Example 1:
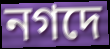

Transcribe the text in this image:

নগদে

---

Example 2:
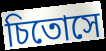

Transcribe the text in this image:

চিতোসে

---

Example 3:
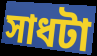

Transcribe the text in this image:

সাধটা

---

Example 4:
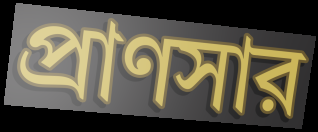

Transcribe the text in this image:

প্রাণসার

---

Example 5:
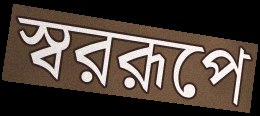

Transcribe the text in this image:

স্বররূপে